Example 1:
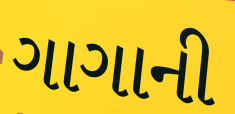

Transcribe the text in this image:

ગાગાની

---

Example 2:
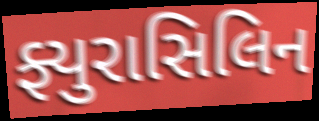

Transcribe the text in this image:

ફ્યુરાસિલિન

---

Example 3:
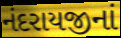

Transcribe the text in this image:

નંદરાયજીનાં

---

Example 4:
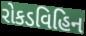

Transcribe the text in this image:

રોકડવિહિન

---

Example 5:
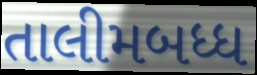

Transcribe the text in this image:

તાલીમબધ્ધ